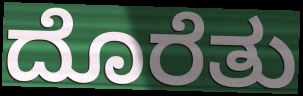
ದೊರೆತು